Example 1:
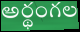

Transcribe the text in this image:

అర్థంగల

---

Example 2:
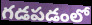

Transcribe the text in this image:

గడపడంలో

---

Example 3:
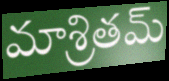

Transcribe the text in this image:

మాశ్రితమ్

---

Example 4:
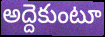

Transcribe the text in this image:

అద్దెకుంటూ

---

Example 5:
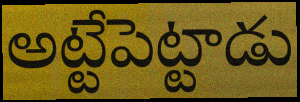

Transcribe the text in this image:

అట్టేపెట్టాడు